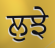
ਲੁਝੇ